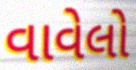
વાવેલો